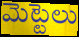
మెట్టెలు